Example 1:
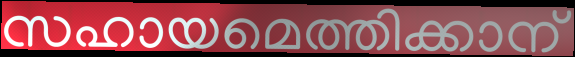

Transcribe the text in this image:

സഹായമെത്തിക്കാന്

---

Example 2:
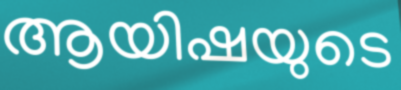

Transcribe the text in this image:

ആയിഷയുടെ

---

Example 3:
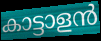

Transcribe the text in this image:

കാട്ടാളൻ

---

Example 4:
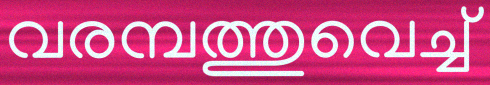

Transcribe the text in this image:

വരമ്പത്തുവെച്ച്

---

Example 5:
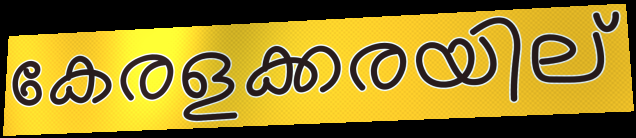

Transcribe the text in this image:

കേരളക്കരയില്